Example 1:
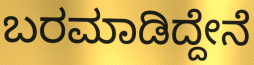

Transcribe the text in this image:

ಬರಮಾಡಿದ್ದೇನೆ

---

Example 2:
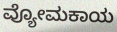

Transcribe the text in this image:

ವ್ಯೋಮಕಾಯ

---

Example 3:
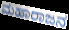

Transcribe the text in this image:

ಮಹಾರಾಜನ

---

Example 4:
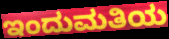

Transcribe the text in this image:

ಇಂದುಮತಿಯ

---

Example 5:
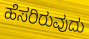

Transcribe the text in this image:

ಹೆಸರಿರುವುದು